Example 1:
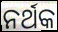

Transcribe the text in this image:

ନର୍ଥକ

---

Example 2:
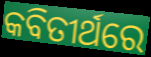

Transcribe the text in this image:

କବିତୀର୍ଥରେ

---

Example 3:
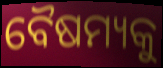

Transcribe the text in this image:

ବୈଷମ୍ୟକୁ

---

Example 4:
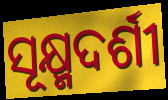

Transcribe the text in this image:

ସୂକ୍ଷ୍ମଦର୍ଶୀ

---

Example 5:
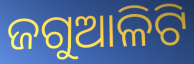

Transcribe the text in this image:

ଜଗୁଆଳିଟି